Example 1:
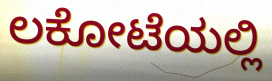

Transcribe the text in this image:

ಲಕೋಟೆಯಲ್ಲಿ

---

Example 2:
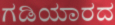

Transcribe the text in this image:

ಗಡಿಯಾರದ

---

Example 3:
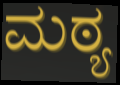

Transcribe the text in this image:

ಮಠ್ಯ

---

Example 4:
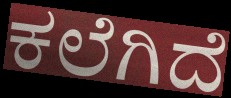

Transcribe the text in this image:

ಕಲೆಗಿದೆ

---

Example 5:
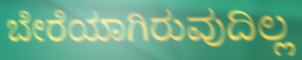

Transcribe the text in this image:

ಬೇರೆಯಾಗಿರುವುದಿಲ್ಲ